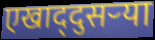
एखाद्‌दुसऱ्या